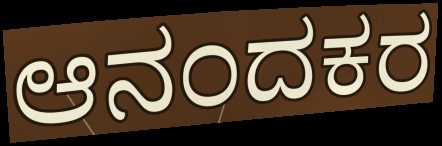
ಆನಂದಕರ